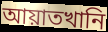
আয়াতখানি